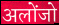
अलोंजो